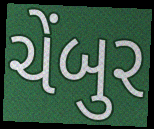
ચેંબુર